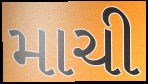
માચી